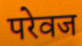
परेवज